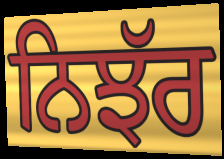
ਨਿਝੱਰ